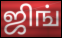
ஜிங்